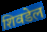
शिवडेल